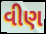
વીણ